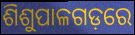
ଶିଶୁପାଳଗଡ଼ରେ